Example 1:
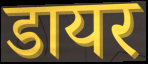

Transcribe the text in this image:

डायर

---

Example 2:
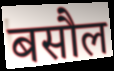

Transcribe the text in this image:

बसौल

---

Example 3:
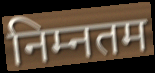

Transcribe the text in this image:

निम्नतम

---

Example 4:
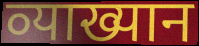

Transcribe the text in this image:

व्‍याख्‍यान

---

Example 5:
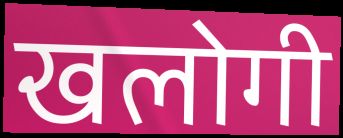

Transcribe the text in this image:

खलोगी